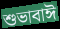
শুভাবাঈ